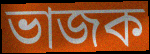
ভাজক